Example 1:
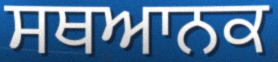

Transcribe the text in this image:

ਸਥਆਨਕ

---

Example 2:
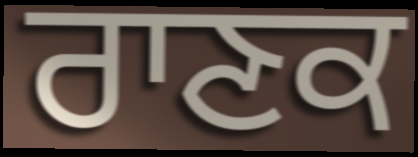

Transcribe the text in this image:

ਰਾਣਕ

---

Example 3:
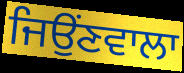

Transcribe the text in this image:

ਜਿਉਂਣਵਾਲਾ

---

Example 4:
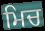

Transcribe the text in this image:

ਮਿਚ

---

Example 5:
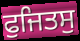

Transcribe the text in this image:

ਫੁਜਿਤਸੁ